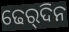
ଢେର୍‌ଦିନ